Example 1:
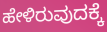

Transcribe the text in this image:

ಹೇಳಿರುವುದಕ್ಕೆ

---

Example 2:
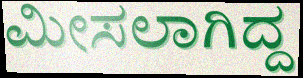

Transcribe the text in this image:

ಮೀಸಲಾಗಿದ್ದ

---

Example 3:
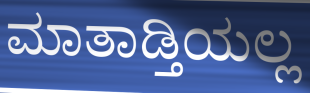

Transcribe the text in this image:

ಮಾತಾಡ್ತಿಯಲ್ಲ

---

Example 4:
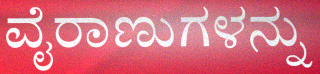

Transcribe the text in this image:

ವೈರಾಣುಗಳನ್ನು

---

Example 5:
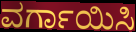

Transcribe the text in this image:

ವರ್ಗಾಯಿಸಿ